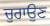
ਚੁਰਾਉਣ